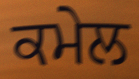
ਕਮੇਲ